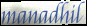
manadhil